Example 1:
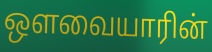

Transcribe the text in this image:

ஔவையாரின்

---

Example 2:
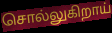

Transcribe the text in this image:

சொல்லுகிறாய்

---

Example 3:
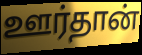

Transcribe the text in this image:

ஊர்தான்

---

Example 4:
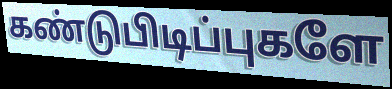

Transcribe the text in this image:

கண்டுபிடிப்புகளே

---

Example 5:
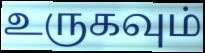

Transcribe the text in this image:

உருகவும்